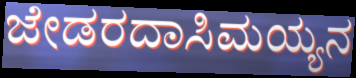
ಜೇಡರದಾಸಿಮಯ್ಯನ